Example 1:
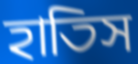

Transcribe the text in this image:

হাতিস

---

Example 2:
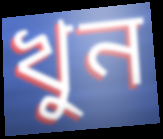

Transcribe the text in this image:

খুন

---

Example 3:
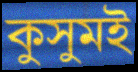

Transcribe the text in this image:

কুসুমই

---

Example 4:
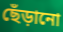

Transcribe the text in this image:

ছেঁড়ানো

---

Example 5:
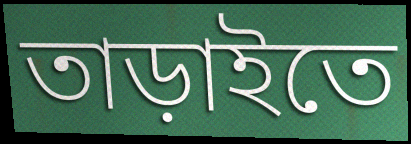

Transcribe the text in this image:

তাড়াইতে